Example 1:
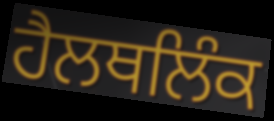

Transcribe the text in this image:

ਹੈਲਥਲਿੰਕ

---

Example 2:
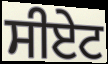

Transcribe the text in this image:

ਸੀਏਟ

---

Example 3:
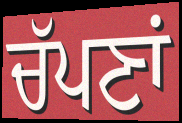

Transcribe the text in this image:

ਚੱਪਣਾਂ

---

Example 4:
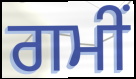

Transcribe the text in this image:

ਗਮੀਂ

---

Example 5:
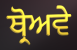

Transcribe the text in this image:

ਥ੍ਰੋਅਵੇ